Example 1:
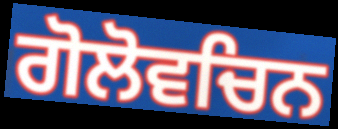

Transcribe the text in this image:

ਗੋਲੋਵਚਿਨ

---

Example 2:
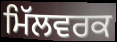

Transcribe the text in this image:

ਮਿੱਲਵਰਕ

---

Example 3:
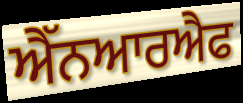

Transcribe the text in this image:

ਐੱਨਆਰਐਫ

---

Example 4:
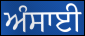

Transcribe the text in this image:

ਅੰਸਾਈ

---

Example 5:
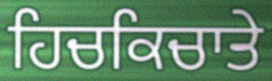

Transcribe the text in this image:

ਹਿਚਕਿਚਾਤੇ